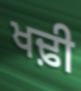
ਖਢ਼ੀ